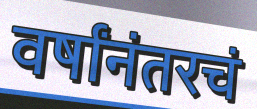
वर्षांनंतरचं